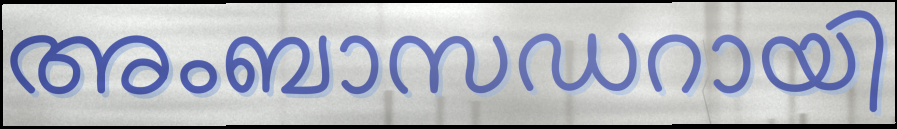
അംബാസഡറായി